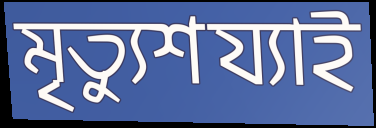
মৃত্যুশয্যাই